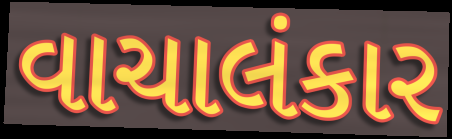
વાચાલંકાર